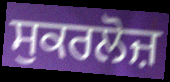
ਸੁਕਰਲੋਜ਼